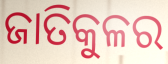
ଜାତିକୁଳର